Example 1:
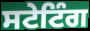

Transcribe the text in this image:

ਸਟੇਟਿੰਗ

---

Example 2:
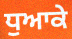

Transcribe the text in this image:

ਧੁਆਕੇ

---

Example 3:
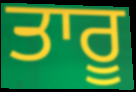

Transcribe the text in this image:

ਤਾਰੂ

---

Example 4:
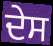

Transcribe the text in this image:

ਦੇਸ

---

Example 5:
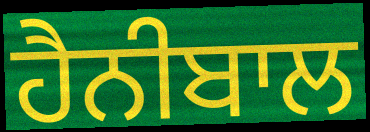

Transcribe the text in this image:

ਹੈਨੀਬਾਲ